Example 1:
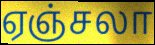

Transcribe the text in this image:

ஏஞ்சலா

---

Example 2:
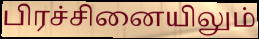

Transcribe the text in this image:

பிரச்சினையிலும்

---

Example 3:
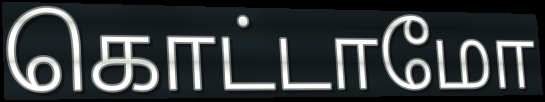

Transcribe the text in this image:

கொட்டாமோ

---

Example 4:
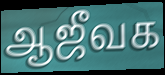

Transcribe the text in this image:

ஆஜீவக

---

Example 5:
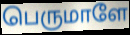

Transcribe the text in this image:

பெருமாளே